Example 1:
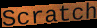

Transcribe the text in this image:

Scratch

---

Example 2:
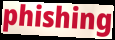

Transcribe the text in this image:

phishing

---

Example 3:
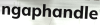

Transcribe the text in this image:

ngaphandle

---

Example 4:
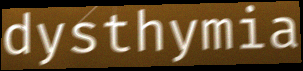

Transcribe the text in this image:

dysthymia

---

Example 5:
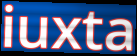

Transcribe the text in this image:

iuxta